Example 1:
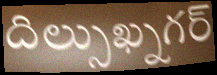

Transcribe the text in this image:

దిల్సుఖ్నగర్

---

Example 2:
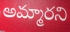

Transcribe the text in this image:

అమ్మారని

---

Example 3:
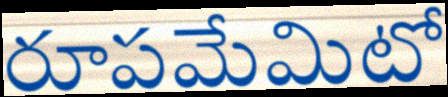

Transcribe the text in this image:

రూపమేమిటో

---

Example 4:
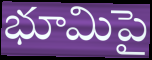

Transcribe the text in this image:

భూమిపై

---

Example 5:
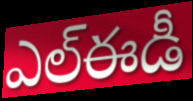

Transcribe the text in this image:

ఎల్ఈడీ